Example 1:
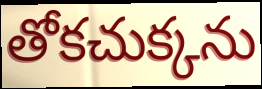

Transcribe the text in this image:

తోకచుక్కను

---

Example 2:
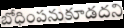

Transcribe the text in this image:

బోధింపనుకూడదని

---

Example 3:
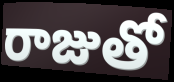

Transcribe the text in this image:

రాజుతో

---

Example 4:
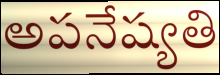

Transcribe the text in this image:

అపనేష్యతి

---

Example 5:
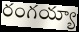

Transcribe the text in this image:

రంగయ్యా